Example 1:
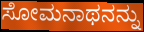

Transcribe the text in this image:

ಸೋಮನಾಥನನ್ನು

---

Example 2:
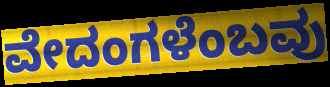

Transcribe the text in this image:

ವೇದಂಗಳೆಂಬವು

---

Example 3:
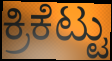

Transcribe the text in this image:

ಕ್ರಿಕೆಟ್ಟು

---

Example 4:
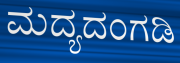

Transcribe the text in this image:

ಮದ್ಯದಂಗಡಿ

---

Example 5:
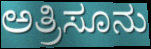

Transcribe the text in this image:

ಅತ್ರಿಸೂನು